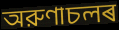
অৰুণাচলৰ